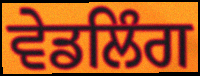
ਵੇਡਲਿੰਗ